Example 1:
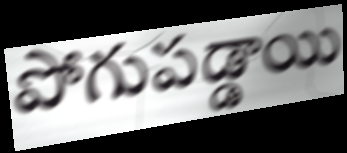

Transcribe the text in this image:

పోగుపడ్డాయి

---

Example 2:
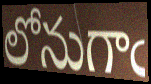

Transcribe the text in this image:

లోనుగాఁ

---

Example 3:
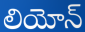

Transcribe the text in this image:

లియోన్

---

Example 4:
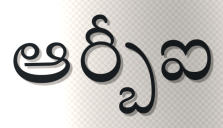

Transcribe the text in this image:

ఆర్బీఐ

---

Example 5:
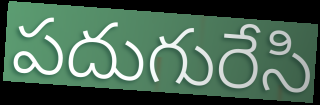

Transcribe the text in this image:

పదుగురేసి